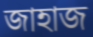
জাহাজ